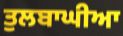
ਤੁਲਬਾਘੀਆ